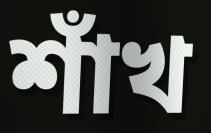
শাঁখ